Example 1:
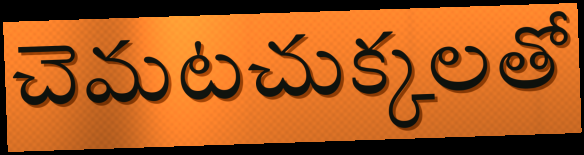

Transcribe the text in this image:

చెమటచుక్కలతో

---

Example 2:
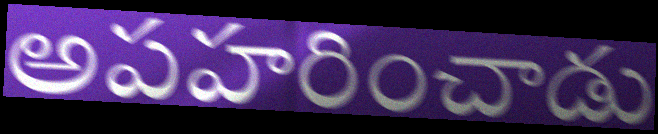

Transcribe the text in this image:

అపహరించాడు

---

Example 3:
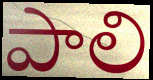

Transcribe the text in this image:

పాలి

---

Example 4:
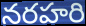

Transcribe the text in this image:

నరహరి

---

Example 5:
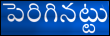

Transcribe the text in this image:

పెరిగినట్టు